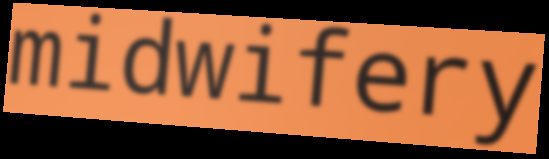
midwifery